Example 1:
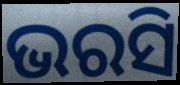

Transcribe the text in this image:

ଭରସି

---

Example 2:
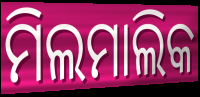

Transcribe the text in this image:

ମିଲମାଲିକ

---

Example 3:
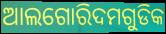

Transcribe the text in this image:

ଆଲଗୋରିଦମଗୁଡିକ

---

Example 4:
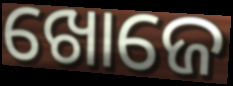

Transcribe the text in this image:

ଖୋଜେ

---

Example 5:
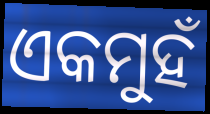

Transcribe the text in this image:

ଏକମୁହଁ